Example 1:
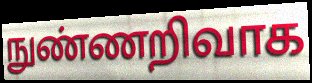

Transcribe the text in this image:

நுண்ணறிவாக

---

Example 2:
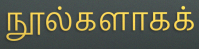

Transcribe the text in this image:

நூல்களாகக்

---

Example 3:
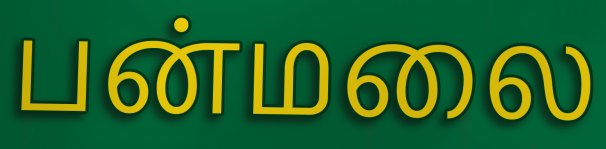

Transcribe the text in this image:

பன்மலை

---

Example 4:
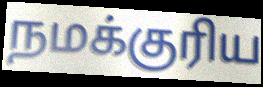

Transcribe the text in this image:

நமக்குரிய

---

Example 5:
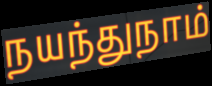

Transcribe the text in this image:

நயந்துநாம்